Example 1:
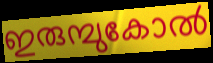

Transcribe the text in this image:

ഇരുമ്പുകോൽ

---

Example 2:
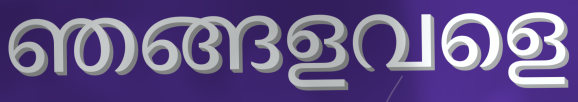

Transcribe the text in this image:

ഞങ്ങളവളെ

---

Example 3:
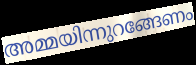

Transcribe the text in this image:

അമ്മയിന്നുറങ്ങേണം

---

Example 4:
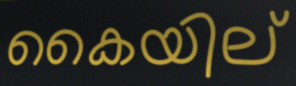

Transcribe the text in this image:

കൈയില്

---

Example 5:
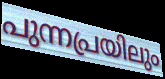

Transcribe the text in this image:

പുന്നപ്രയിലും